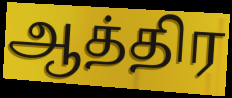
ஆத்திர